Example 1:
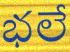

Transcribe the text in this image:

భలే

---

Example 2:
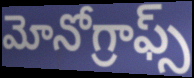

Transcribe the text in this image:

మోనోగ్రాఫ్స్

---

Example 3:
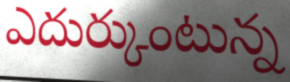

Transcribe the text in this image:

ఎదుర్కుంటున్న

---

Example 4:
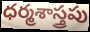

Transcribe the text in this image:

ధర్మశాస్త్రపు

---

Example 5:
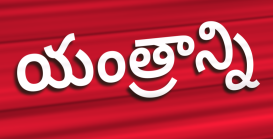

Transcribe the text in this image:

యంత్రాన్ని